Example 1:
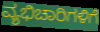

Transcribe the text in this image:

ವ್ಯಭಿಚಾರಿಗಳಿಗೆ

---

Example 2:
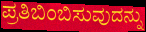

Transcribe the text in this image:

ಪ್ರತಿಬಿಂಬಿಸುವುದನ್ನು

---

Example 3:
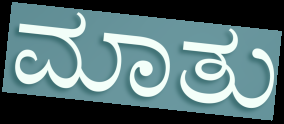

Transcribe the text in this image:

ಮಾತು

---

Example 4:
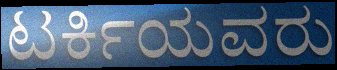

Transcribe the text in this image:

ಟರ್ಕಿಯವರು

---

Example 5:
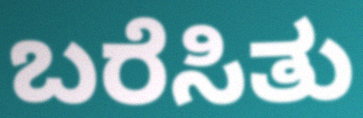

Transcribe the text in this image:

ಬರೆಸಿತು